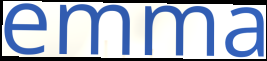
emma